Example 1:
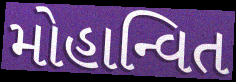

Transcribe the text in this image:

મોહાન્વિત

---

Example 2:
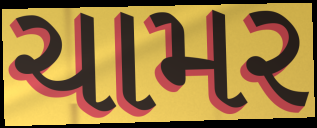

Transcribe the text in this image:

ચામર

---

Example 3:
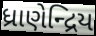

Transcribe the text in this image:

ધ્રાણેન્દ્રિય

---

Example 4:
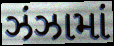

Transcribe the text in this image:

ઝંઝામાં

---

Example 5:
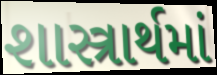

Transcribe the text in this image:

શાસ્ત્રાર્થમાં